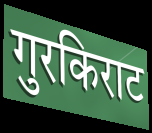
गुरकिराट